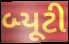
બ્યૂટી